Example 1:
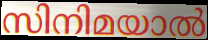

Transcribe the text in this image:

സിനിമയാൽ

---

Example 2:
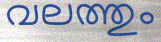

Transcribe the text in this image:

വലത്തും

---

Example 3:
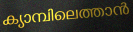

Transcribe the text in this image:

ക്യാമ്പിലെത്താൻ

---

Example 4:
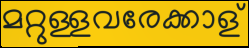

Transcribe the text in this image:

മറ്റുള്ളവരേക്കാള്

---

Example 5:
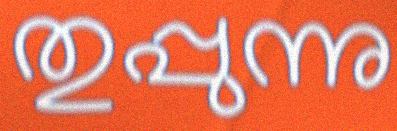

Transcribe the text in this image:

തുപ്പുന്നു